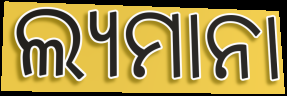
ଲ୍ୟମାନା